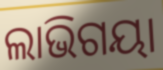
ଲାଭିଗୟା